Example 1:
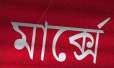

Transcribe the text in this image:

মাৰ্ক্সে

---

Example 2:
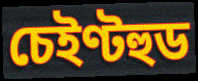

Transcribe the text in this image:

চেইণ্টহুড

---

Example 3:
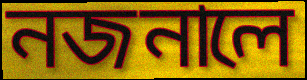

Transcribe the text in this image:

নজনালে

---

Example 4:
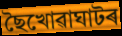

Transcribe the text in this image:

ছৈখোৱাঘাটৰ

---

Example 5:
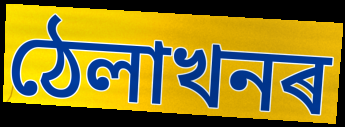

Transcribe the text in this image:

ঠেলাখনৰ